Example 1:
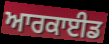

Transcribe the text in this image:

ਆਰਕਾਈਡ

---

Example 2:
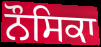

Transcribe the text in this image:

ਨੌਸਿਕਾ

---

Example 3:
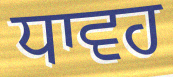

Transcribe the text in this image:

ਧਾਵਹ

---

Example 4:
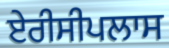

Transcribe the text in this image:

ਏਰੀਸੀਪਲਾਸ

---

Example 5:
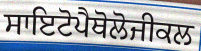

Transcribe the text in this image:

ਸਾਇਟੋਪੈਥੋਲੋਜੀਕਲ